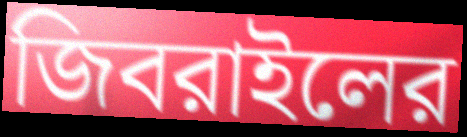
জিবরাইলের